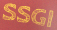
SSGI